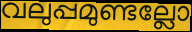
വലുപ്പമുണ്ടല്ലോ